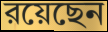
রয়েছেন